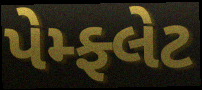
પેમ્ફ્લેટ